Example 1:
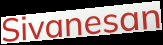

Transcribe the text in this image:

Sivanesan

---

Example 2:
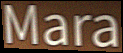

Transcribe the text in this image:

Mara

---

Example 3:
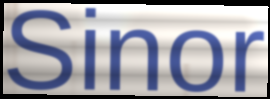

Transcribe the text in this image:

Sinor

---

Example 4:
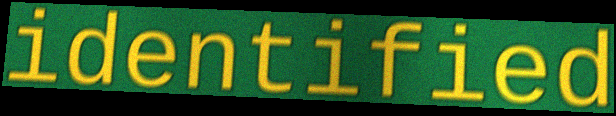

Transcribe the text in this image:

identified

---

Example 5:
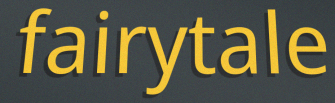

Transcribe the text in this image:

fairytale